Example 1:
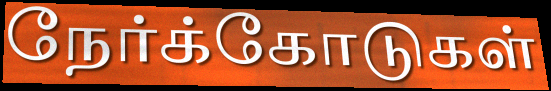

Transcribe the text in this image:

நேர்க்கோடுகள்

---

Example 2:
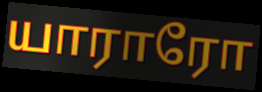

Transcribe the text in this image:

யாராரோ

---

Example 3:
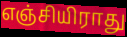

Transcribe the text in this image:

எஞ்சியிராது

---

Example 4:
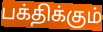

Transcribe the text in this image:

பக்திக்கும்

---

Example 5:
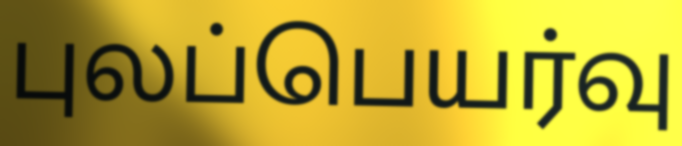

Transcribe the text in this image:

புலப்பெயர்வு